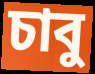
চাবু